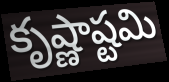
కృష్ణాష్టమి